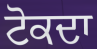
ਟੋਕਦਾ